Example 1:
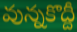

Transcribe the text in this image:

వున్నకొద్దీ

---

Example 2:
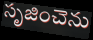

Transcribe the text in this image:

సృజించెను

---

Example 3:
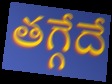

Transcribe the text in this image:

తగ్గేదే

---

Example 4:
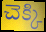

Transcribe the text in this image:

చెక్కి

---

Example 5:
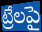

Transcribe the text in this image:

ట్రేలపై